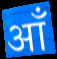
आँ